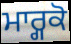
ਮਾਰ੍ਗਕੋ